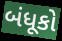
બંધૂકો